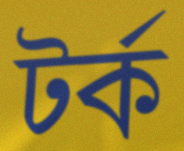
টর্ক